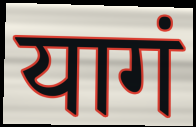
यागं